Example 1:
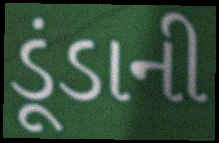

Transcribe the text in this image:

ડૂંડાની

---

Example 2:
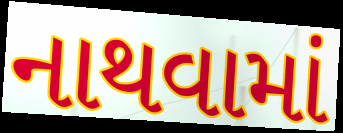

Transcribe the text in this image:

નાથવામાં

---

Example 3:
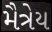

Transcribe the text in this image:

મૈત્રેય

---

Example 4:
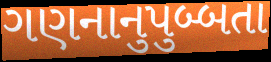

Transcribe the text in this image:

ગણનાનુપુબ્બતા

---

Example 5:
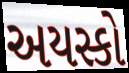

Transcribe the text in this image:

અયસ્કો